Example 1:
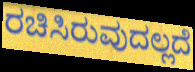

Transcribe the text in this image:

ರಚಿಸಿರುವುದಲ್ಲದೆ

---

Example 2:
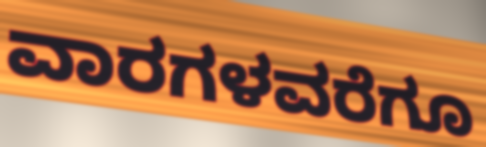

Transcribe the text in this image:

ವಾರಗಳವರೆಗೂ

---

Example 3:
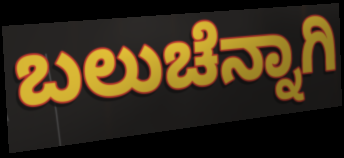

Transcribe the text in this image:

ಬಲುಚೆನ್ನಾಗಿ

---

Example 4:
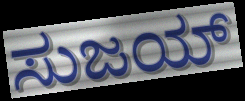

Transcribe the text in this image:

ಸುಜಯ್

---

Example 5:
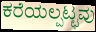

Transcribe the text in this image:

ಕರೆಯಲ್ಪಟ್ಟವು